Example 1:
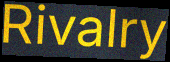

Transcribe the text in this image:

Rivalry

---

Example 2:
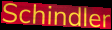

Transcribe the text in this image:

Schindler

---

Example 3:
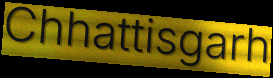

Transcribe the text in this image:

Chhattisgarh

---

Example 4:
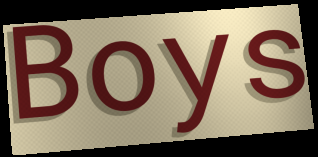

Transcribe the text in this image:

Boys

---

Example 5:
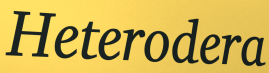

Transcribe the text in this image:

Heterodera